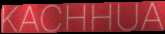
KACHHUA